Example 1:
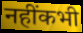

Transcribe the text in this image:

नहींकभी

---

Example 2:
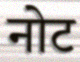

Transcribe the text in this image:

नोट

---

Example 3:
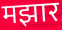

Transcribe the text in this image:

मझार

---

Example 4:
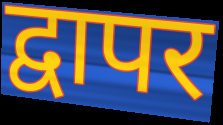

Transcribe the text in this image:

द्वापर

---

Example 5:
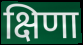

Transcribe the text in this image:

क्षिणा